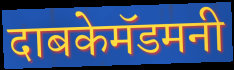
दाबकेमॅडमनी